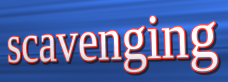
scavenging